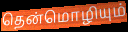
தென்மொழியும்